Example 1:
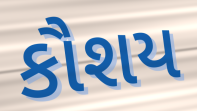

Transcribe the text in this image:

કૌશય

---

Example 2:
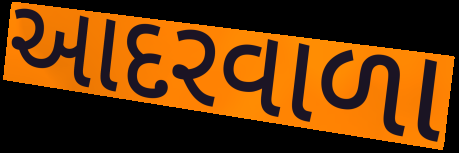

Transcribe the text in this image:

આદરવાળા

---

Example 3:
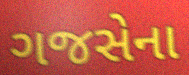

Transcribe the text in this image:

ગજસેના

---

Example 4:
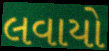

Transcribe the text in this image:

લવાયો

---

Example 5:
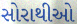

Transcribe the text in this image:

સોરાથીઓ